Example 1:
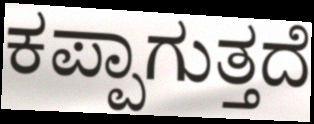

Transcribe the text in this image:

ಕಪ್ಪಾಗುತ್ತದೆ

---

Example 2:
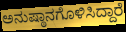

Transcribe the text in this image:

ಅನುಷ್ಠಾನಗೊಳಿಸಿದ್ದಾರೆ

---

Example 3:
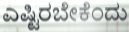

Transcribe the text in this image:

ಎಷ್ಟಿರಬೇಕೆಂದು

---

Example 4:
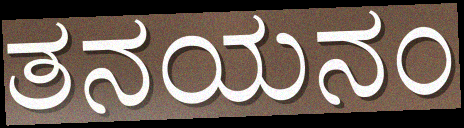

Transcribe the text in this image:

ತನಯನಂ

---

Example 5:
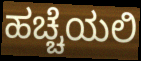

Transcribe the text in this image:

ಹಚ್ಚೆಯಲಿ